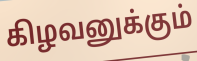
கிழவனுக்கும்